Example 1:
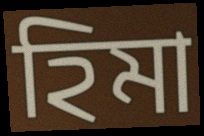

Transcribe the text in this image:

হিমা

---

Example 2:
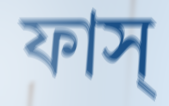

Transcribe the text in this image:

ফাস্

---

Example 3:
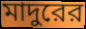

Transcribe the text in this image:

মাদুরের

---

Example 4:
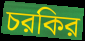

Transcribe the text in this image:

চরকির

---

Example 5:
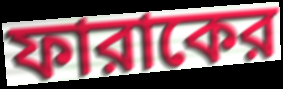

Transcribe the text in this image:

ফারাকের